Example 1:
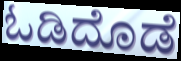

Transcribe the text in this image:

ಓಡಿದೊಡೆ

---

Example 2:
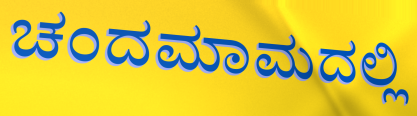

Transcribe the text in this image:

ಚಂದಮಾಮದಲ್ಲಿ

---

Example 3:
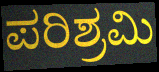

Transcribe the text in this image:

ಪರಿಶ್ರಮಿ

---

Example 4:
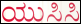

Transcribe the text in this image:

ಯುಸಿಸಿ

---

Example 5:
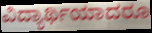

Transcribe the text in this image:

ವಿದ್ಯಾರ್ಥಿಯಾದರೂ